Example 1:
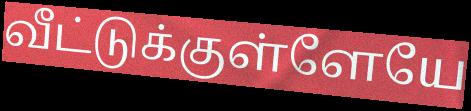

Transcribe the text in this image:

வீட்டுக்குள்ளேயே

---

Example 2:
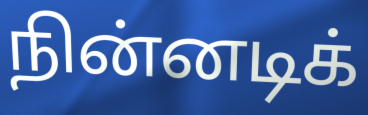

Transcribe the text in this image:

நின்னடிக்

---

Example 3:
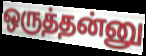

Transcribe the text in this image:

ஒருத்தன்னு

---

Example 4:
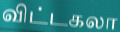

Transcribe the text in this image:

விட்டகலா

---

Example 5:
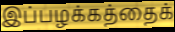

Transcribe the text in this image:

இப்பழக்கத்தைக்